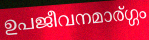
ഉപജീവനമാര്ഗ്ഗം